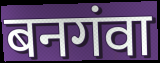
बनगंवा